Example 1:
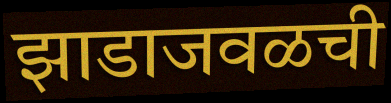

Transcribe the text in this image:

झाडाजवळची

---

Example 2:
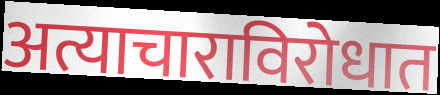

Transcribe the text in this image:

अत्याचाराविरोधात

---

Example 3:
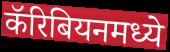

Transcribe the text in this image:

कॅरिबियनमध्ये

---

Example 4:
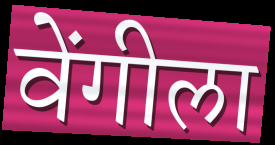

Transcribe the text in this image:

वेंगीला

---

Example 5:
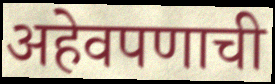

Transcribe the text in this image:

अहेवपणाची